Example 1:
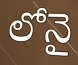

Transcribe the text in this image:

లోనై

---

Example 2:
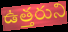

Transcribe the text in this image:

ఉత్తరుని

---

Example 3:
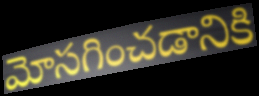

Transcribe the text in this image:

మోసగించడానికి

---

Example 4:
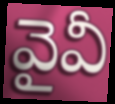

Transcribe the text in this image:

వైవీ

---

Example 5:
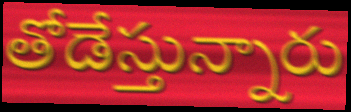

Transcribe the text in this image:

తోడేస్తున్నారు